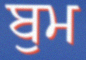
ਬੁਮ